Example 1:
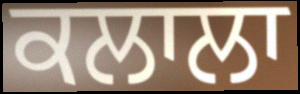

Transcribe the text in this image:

ਕਲਾਲਾ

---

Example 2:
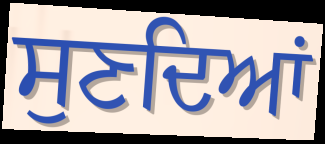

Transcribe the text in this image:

ਸੁਣਦਿਆਂ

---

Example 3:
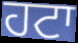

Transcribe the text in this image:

ਹਟਾ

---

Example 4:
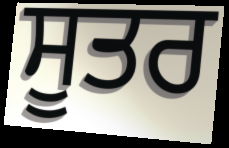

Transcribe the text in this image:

ਸੂਤਰ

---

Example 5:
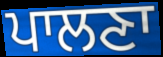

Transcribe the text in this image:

ਪਾਲਣਾ